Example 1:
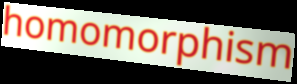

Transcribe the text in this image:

homomorphism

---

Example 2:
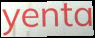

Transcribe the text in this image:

yenta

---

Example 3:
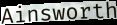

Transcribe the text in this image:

Ainsworth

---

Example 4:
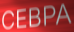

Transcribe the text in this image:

CEBPA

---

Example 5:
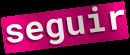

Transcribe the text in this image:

seguir